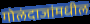
गोलंदाजांमधील